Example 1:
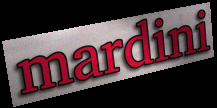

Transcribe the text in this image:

mardini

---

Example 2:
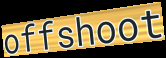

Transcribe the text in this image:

offshoot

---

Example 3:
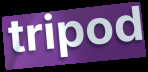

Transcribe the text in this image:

tripod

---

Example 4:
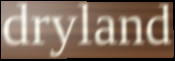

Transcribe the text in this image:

dryland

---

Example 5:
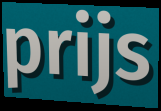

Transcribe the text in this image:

prijs